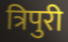
त्रिपुरी